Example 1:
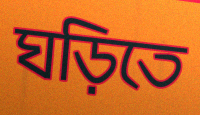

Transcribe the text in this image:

ঘড়িতে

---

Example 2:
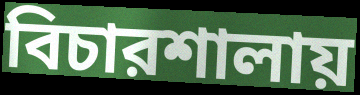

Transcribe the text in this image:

বিচারশালায়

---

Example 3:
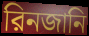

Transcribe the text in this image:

রিনজানি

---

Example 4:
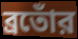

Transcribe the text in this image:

ব্রতোঁর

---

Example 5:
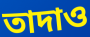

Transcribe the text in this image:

তাদাও